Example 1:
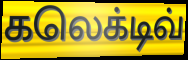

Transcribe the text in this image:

கலெக்டிவ்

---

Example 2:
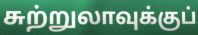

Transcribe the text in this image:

சுற்றுலாவுக்குப்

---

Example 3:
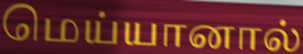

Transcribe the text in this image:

மெய்யானால்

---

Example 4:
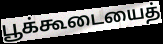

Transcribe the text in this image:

பூக்கூடையைத்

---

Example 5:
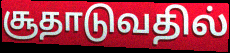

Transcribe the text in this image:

சூதாடுவதில்